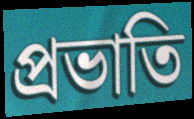
প্রভাতি